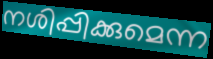
നശിപ്പിക്കുമെന്ന